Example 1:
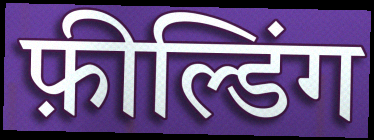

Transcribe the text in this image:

फ़ील्डिंग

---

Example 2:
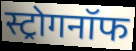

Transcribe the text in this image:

स्ट्रोगनॉफ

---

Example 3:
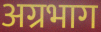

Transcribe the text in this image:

अग्रभाग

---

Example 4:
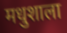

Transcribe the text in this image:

मधुशाला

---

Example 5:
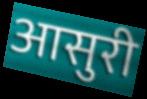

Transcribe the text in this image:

आसुरी